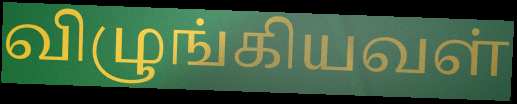
விழுங்கியவள்